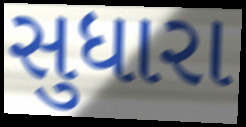
સુધારા